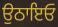
ਉਠਾਇਓ